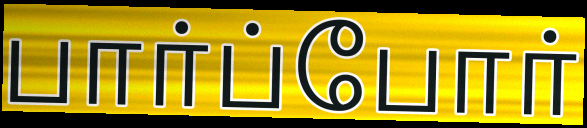
பார்ப்போர்